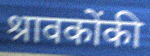
श्रावकोंकी